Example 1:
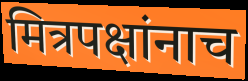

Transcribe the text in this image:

मित्रपक्षांनाच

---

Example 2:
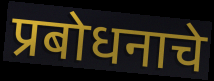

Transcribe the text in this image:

प्रबोधनाचे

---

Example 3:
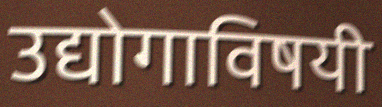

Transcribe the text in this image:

उद्योगाविषयी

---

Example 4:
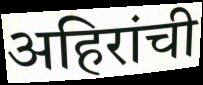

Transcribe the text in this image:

अहिरांची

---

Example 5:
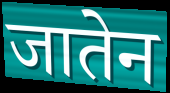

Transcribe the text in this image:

जातेन